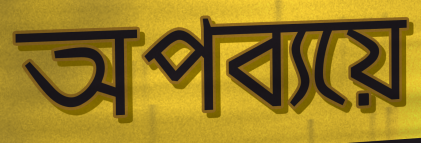
অপব্যয়ে